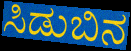
ಸಿಡುಬಿನ